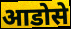
आडोसे